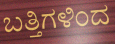
ಬತ್ತಿಗಳಿಂದ